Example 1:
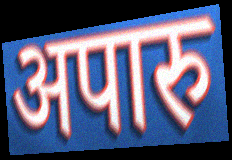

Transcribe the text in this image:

अपारु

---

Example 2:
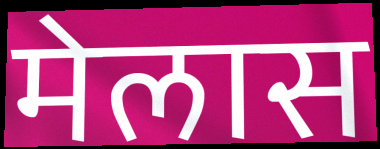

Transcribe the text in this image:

मेलास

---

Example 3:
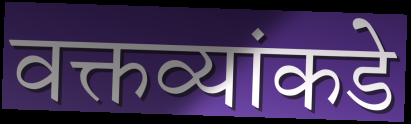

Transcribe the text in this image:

वक्तव्यांकडे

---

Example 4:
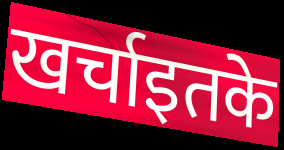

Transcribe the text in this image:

खर्चाइतके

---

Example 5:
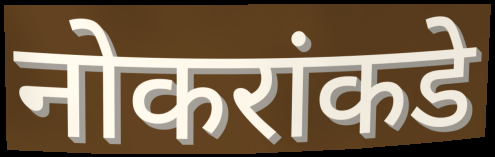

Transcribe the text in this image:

नोकरांकडे